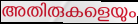
അതിരുകളെയും